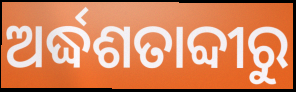
ଅର୍ଦ୍ଧଶତାବ୍ଦୀରୁ